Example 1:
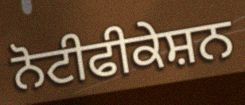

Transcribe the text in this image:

ਨੋਟੀਫੀਕੇਸ਼ਨ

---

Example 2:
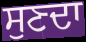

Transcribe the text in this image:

ਸੁਣਦਾ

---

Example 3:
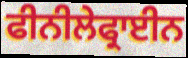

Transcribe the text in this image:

ਫੀਨੀਲੇਫ੍ਰਾਈਨ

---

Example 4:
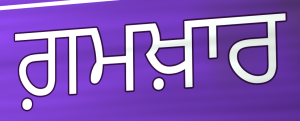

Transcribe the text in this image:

ਗ਼ਮਖ਼ਾਰ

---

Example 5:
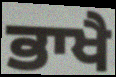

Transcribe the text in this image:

ਭਾਖੈ